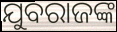
ଯୁବରାଜଙ୍କ